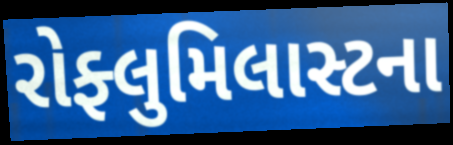
રોફ્લુમિલાસ્ટના